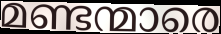
മണ്ടന്മാരെ